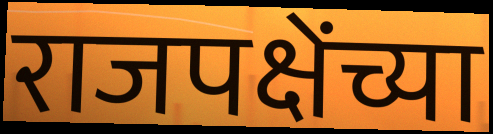
राजपक्षेंच्या